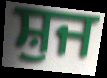
ਸ਼ੁਜ